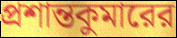
প্রশান্তকুমারের